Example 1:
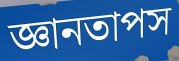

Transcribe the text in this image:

জ্ঞানতাপস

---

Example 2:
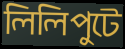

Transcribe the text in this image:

লিলিপুটে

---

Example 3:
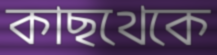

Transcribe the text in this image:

কাছথেকে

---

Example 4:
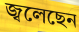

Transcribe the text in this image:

জ্বলেছেন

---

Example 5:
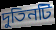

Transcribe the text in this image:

দুতিনটি